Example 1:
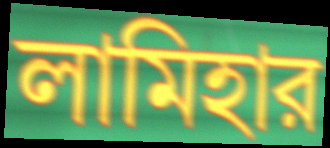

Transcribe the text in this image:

লামিহার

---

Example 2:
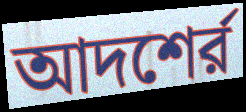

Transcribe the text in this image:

আদশের্র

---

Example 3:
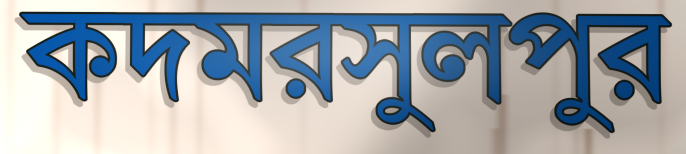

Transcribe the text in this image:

কদমরসুলপুর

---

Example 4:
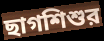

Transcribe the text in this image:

ছাগশিশুর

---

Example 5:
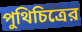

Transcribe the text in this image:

পুথিচিত্রের